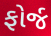
ફોર્જ